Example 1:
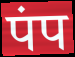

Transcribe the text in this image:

पंप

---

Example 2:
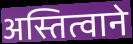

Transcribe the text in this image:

अस्तित्वाने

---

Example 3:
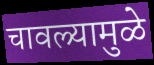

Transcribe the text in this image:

चावल्यामुळे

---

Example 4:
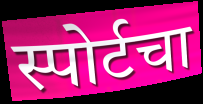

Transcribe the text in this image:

स्पोर्टचा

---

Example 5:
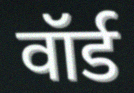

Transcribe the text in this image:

वॉर्ड